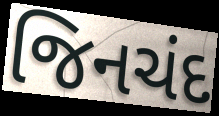
જિનચંદ